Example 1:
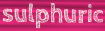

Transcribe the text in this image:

sulphuric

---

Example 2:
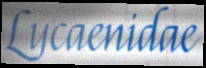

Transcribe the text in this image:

Lycaenidae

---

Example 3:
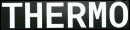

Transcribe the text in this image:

THERMO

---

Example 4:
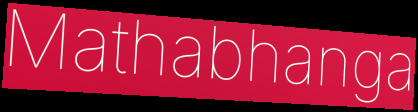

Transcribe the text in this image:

Mathabhanga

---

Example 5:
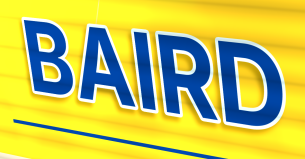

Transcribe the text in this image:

BAIRD